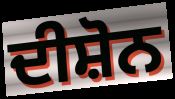
ਦੀਸ਼ੋਨ